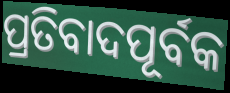
ପ୍ରତିବାଦପୂର୍ବକ